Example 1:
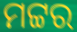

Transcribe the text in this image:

ମଟ୍ଟର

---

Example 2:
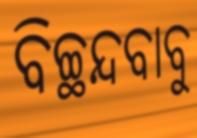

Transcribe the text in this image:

ବିଚ୍ଛନ୍ଦବାବୁ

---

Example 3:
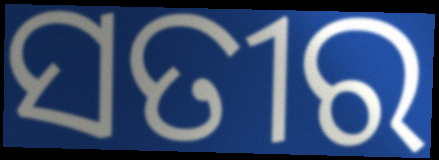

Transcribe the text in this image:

ସତୀର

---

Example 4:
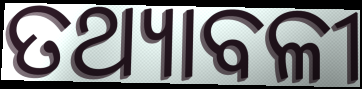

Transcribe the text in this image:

ତଥ୍ୟାବଳୀ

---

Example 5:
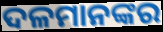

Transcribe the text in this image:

ଦଳମାନଙ୍କର